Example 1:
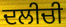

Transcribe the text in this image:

ਦਲੀਚੀ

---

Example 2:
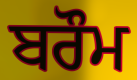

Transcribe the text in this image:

ਬਰੌਮ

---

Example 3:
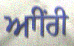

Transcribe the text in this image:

ਆੀਂਰੀ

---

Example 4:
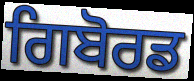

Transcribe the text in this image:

ਗਿਬੋਰਡ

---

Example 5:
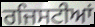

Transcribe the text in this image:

ਰਜਿਸਟੀਆਂ